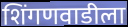
शिंगणवाडीला